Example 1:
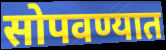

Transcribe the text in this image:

सोपवण्यात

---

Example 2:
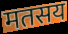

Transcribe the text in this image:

मतसय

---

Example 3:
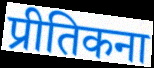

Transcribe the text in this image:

प्रीतिकना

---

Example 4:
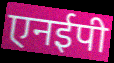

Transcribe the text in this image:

एनईपी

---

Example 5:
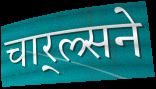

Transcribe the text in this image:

चार्ल्सने